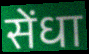
सेंधा